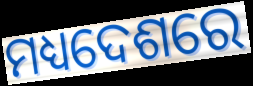
ମଧ୍ୟଦେଶରେ